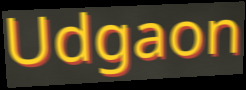
Udgaon